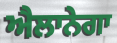
ਐਲਾਨੇਗਾ